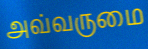
அவ்வருமை